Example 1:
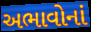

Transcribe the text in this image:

અભાવોનાં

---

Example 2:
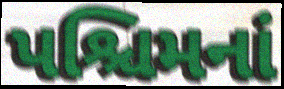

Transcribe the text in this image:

પશ્ચિમનાં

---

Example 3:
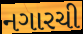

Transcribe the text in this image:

નગારચી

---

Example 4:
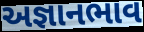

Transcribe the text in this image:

અજ્ઞાનભાવ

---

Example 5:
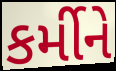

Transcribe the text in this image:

કર્મીને